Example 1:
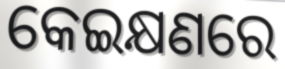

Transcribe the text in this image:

କେଇକ୍ଷଣରେ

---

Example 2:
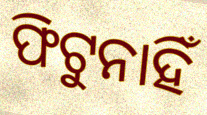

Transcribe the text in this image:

ଫିଟୁନାହିଁ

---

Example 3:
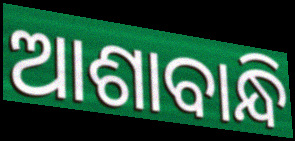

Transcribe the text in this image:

ଆଶାବାନ୍ଧି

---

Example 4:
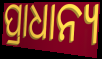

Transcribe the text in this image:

ପ୍ରାଧାନ୍ୟ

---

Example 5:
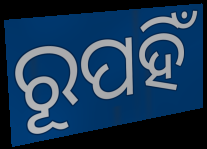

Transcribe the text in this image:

ରୂପହିଁ